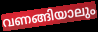
വണങ്ങിയാലും